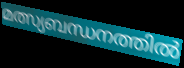
മത്സ്യബന്ധനത്തിൽ